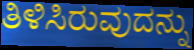
ತಿಳಿಸಿರುವುದನ್ನು